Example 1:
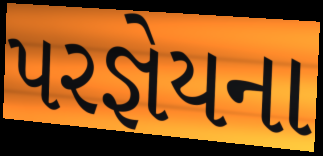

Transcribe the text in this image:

પરજ્ઞેયના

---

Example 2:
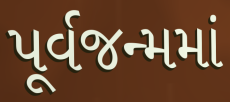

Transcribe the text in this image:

પૂર્વજન્મમાં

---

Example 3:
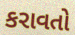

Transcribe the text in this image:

કરાવતો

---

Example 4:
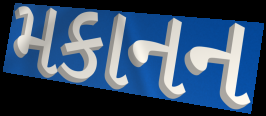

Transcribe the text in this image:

મકાનન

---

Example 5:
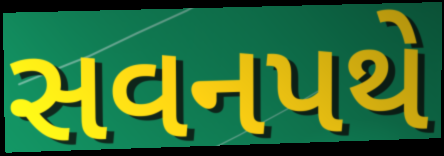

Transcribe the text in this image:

સવનપથે